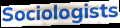
Sociologists